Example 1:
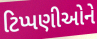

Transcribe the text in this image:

ટિપ્પણીઓને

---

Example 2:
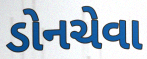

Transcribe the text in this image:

ડોનચેવા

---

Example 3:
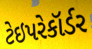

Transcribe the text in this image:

ટેઇપરેકૉર્ડર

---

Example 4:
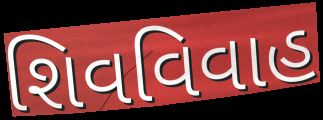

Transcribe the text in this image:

શિવવિવાહ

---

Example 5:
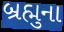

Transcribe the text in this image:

બ્રહ્મુના